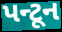
પન્ટૂન